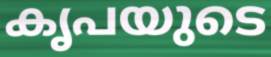
കൃപയുടെ